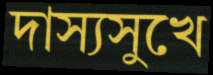
দাস্যসুখে